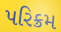
પરિક્રમ